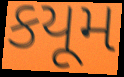
કયૂમ